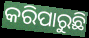
କରିପାରୁଛି